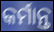
କର୍ମାନ୍ତ